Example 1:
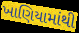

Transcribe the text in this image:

ખાણિયામાંથી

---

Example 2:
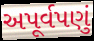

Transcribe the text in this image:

અપૂર્વપણું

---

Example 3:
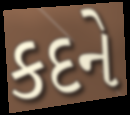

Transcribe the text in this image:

કદને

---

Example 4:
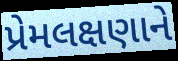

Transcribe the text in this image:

પ્રેમલક્ષણાને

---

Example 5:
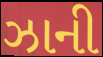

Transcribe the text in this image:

ઝાની